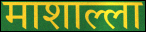
माशाल्ला